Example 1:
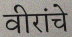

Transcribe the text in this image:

वीरांचे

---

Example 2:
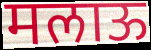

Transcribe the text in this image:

मलाऊ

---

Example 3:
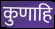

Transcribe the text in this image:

कुणाहि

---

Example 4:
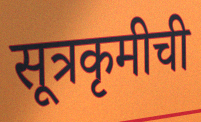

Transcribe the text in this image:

सूत्रकृमीची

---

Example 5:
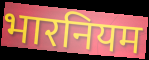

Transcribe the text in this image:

भारनियम